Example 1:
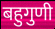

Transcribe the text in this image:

बहुगुणी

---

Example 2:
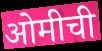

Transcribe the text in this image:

ओमीची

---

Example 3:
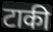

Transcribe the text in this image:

टाकी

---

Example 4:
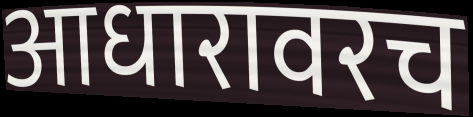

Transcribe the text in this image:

आधारावरच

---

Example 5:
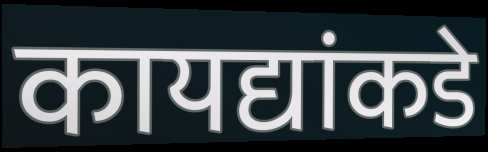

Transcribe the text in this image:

कायद्यांकडे